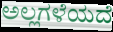
ಅಲ್ಲಗಳೆಯದೆ